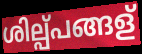
ശില്പ്പങ്ങള്